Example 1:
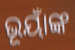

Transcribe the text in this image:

ଭୂୟାଁଙ୍କ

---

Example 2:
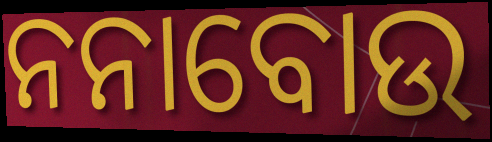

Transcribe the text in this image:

ନନାବୋଉ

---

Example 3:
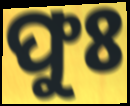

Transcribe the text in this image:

ଫୁଃ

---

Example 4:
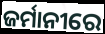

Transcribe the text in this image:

ଜର୍ମାନୀରେ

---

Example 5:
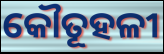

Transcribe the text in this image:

କୌତୂହଳୀ